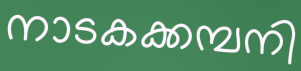
നാടകക്കമ്പനി